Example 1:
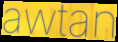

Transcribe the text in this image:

awtan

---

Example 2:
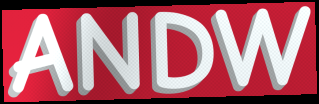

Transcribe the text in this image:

ANDW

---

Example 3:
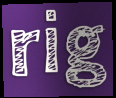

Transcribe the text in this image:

rig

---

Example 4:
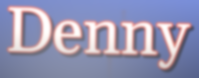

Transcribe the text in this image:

Denny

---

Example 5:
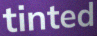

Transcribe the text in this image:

tinted